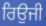
ਰਿਉਜੀ